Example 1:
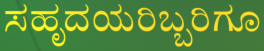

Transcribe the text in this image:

ಸಹೃದಯರಿಬ್ಬರಿಗೂ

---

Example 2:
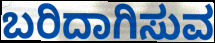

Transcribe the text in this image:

ಬರಿದಾಗಿಸುವ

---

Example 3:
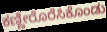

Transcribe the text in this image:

ಕಣ್ಣೀರೊರೆಸಿಕೊಂಡು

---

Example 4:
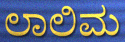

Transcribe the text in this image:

ಲಾಲಿಮ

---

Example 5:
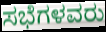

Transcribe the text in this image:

ಸಭೆಗಳವರು